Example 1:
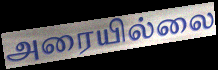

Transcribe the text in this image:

அரையில்லை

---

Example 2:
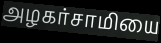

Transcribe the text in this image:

அழகர்சாமியை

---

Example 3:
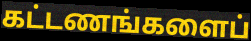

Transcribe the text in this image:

கட்டணங்களைப்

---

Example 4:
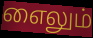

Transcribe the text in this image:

எைலும்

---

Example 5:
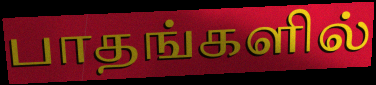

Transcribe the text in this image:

பாதங்களில்